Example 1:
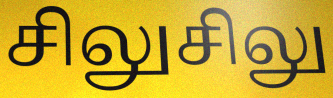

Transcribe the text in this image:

சிலுசிலு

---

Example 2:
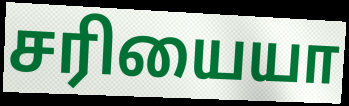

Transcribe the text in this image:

சரியையா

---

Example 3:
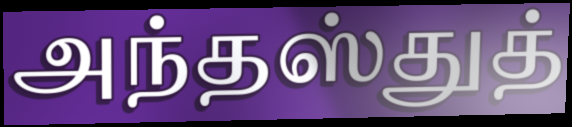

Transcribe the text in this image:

அந்தஸ்துத்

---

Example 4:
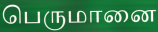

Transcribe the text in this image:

பெருமானை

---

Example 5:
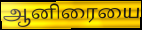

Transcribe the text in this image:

ஆனிரையை